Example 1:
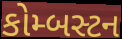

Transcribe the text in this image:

કોમ્બસ્ટન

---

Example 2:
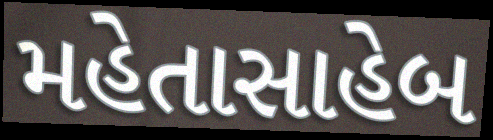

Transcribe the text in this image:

મહેતાસાહેબ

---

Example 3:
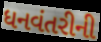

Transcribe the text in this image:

ધનવંતરીની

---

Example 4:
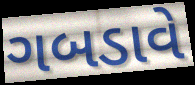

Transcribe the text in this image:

ગબડાવે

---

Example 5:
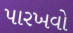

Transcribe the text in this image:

પારખવો